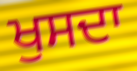
ਖੁਸਦਾ